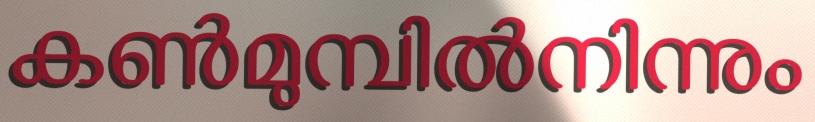
കൺമുമ്പിൽനിന്നും